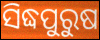
ସିଦ୍ଧପୁରୁଷ